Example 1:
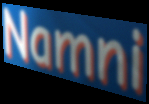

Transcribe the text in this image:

Namni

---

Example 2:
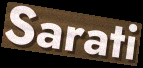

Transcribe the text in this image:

Sarati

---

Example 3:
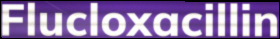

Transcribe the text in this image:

Flucloxacillin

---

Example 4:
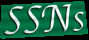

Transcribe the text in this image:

SSNs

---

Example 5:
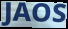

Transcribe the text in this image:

JAOS